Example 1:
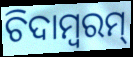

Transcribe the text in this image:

ଚିଦାମ୍ବରମ୍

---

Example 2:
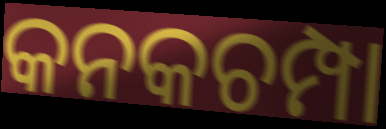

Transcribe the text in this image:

କନକଚମ୍ପା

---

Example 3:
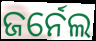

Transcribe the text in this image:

ଜର୍ନେଲ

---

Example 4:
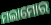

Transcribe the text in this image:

ମଲାମୋର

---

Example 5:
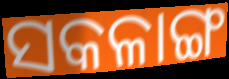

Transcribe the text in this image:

ସକଳାଙ୍ଗ